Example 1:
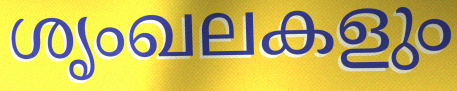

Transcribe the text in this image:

ശൃംഖലകളും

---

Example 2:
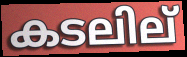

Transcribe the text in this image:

കടലില്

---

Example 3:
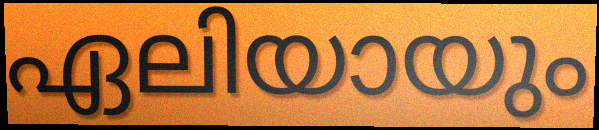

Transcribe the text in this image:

ഏലിയായും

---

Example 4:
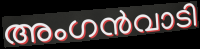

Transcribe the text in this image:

അംഗൻവാടി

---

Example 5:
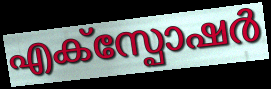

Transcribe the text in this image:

എക്സ്പോഷർ